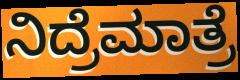
ನಿದ್ರೆಮಾತ್ರೆ